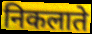
निकलाते